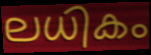
ലധികം